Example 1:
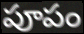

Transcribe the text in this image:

పూపం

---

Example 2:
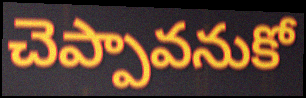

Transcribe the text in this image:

చెప్పావనుకో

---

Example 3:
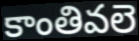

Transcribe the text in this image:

కాంతివలె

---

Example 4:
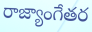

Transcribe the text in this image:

రాజ్యాంగేతర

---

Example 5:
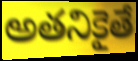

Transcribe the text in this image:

అతనికైతే